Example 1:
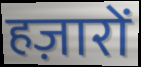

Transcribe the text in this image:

हज़ारों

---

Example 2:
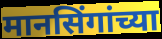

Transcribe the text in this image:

मानसिंगांच्या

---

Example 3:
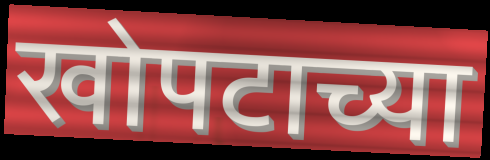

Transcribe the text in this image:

खोपटाच्या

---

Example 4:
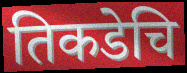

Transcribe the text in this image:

तिकडेचि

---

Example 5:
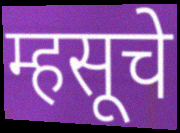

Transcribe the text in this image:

म्हसूचे